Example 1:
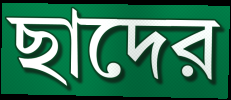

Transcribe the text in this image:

ছাদের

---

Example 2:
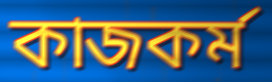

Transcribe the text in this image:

কাজকর্ম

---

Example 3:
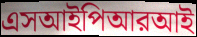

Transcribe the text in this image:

এসআইপিআরআই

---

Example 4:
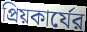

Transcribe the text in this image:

প্রিয়কার্যের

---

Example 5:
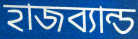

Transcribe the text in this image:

হাজব্যান্ড